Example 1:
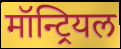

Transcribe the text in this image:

मॉन्ट्रियल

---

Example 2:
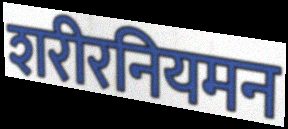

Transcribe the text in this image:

शरीरनियमन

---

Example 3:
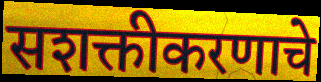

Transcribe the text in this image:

सशक्तीकरणाचे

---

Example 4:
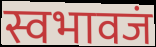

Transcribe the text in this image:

स्वभावजं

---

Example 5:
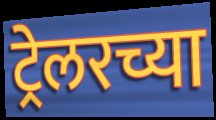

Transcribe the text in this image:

ट्रेलरच्या